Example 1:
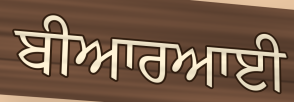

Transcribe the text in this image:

ਬੀਆਰਆਈ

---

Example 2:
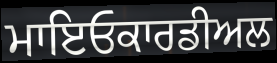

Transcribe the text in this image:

ਮਾਇਓਕਾਰਡੀਅਲ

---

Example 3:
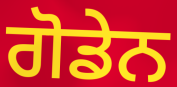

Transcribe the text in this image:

ਗੋਡੇਨ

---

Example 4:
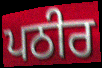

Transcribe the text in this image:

ਪਠੀਰ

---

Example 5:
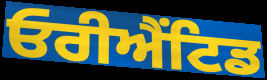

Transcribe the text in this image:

ਓਰੀਐਂਟਿਡ